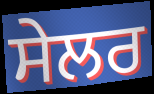
ਸੇਲਰ